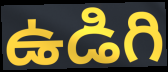
ఉడిగి